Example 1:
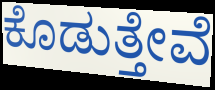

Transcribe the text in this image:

ಕೊಡುತ್ತೇವೆ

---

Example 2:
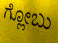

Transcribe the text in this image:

ಗ್ಲೋಬು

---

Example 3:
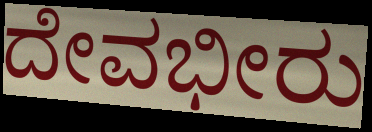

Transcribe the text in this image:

ದೇವಭೀರು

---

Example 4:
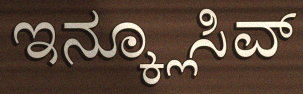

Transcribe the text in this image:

ಇನ್ಕ್ಲೂಸಿವ್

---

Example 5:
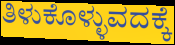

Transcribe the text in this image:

ತಿಳುಕೊಳ್ಳುವದಕ್ಕೆ